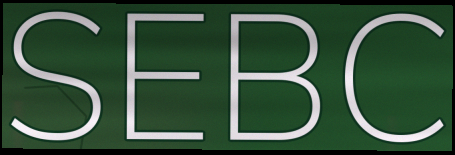
SEBC